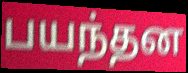
பயந்தன